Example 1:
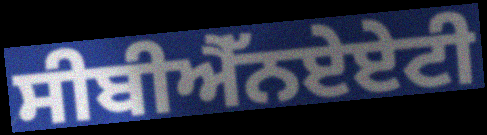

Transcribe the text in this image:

ਸੀਬੀਐੱਨਏਏਟੀ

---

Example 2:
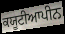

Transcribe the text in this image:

ਕਯੂਟੀਆਪੀਨ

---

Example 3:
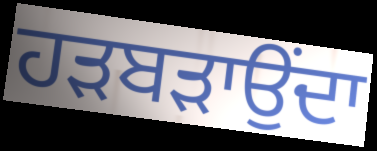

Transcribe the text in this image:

ਹੜਬੜਾਉਂਦਾ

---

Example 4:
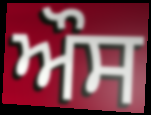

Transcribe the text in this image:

ਔਸ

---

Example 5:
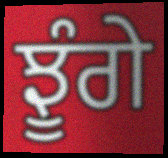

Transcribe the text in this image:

ਝੂੰਗੇ